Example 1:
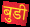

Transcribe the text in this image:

बुडी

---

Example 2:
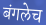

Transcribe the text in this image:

बंगलेच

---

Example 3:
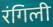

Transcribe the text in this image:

रंगिली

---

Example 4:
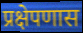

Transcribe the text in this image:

प्रक्षेपणास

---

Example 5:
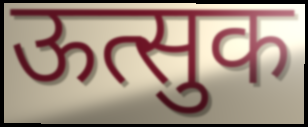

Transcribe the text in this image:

ऊत्सुक